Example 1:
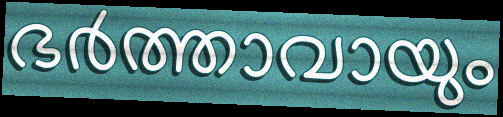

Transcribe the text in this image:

ഭർത്താവായും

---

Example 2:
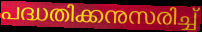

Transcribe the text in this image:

പദ്ധതിക്കനുസരിച്ച്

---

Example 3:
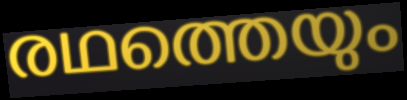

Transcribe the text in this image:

രഥത്തെയും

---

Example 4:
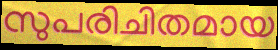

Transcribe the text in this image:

സുപരിചിതമായ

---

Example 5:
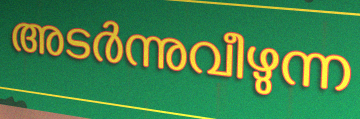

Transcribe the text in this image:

അടർന്നുവീഴുന്ന